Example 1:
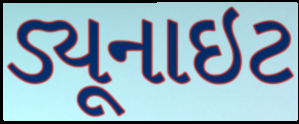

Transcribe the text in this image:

ડ્યૂનાઇટ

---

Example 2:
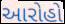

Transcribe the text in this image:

આરોહો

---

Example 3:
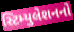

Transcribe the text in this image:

સ્ટિમ્યુલેશનનો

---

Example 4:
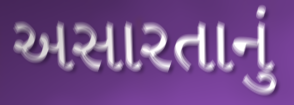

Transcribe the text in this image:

અસારતાનું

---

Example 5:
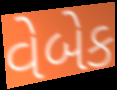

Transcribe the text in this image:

વેબેક